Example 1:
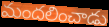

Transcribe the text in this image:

మందలించాడు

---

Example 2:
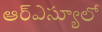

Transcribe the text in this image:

ఆర్ఎస్యూలో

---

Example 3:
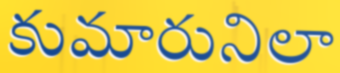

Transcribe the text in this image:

కుమారునిలా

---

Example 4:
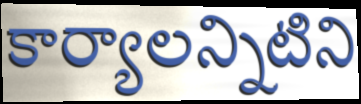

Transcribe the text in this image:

కార్యాలన్నిటిని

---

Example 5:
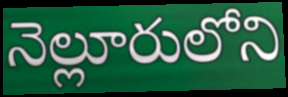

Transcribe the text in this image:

నెల్లూరులోని